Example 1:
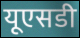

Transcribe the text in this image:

यूएसडी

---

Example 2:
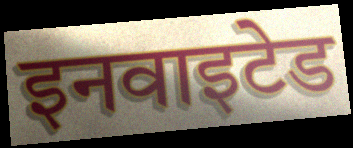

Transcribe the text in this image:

इनवाइटेड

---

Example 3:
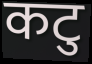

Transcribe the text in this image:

कटु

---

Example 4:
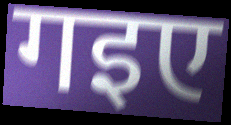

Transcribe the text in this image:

गइए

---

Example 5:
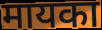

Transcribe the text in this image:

मायका